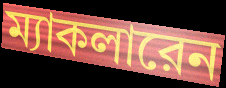
ম্যাকলারেন